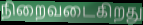
நிறைவடைகிறது